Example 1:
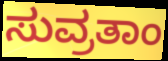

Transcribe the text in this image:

ಸುವ್ರತಾಂ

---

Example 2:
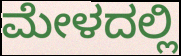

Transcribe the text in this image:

ಮೇಳದಲ್ಲಿ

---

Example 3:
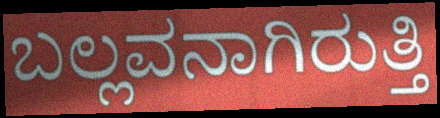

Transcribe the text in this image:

ಬಲ್ಲವನಾಗಿರುತ್ತಿ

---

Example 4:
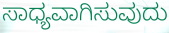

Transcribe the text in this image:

ಸಾಧ್ಯವಾಗಿಸುವುದು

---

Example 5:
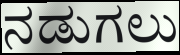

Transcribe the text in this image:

ನಡುಗಲು